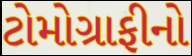
ટોમોગ્રાફીનો